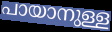
പായാനുള്ള